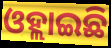
ଓହ୍ଲାଇଛି